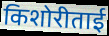
किशोरीताई